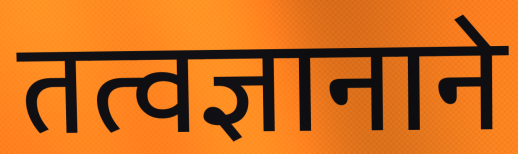
तत्वज्ञानाने